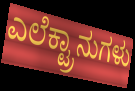
ಎಲೆಕ್ಟ್ರಾನುಗಳು